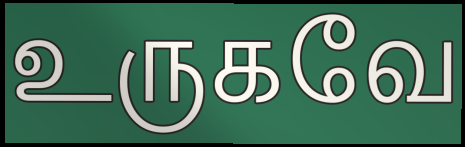
உருகவே